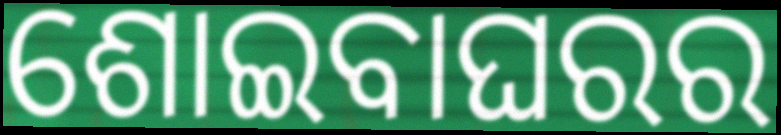
ଶୋଇବାଘରର